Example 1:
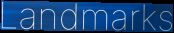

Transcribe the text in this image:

Landmarks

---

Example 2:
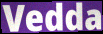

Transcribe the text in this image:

Vedda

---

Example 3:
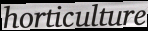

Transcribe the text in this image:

horticulture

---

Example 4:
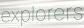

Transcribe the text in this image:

explorers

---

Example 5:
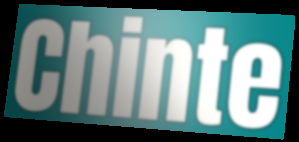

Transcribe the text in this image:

Chinte